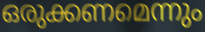
ഒരുക്കണമെന്നും